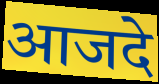
आजदे